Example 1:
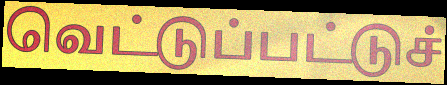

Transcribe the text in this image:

வெட்டுப்பட்டுச்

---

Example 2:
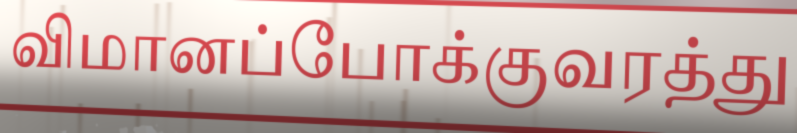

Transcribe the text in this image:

விமானப்போக்குவரத்து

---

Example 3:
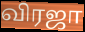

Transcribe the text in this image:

விரஜா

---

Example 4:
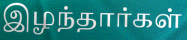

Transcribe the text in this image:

இழந்தார்கள்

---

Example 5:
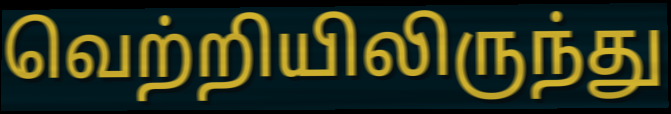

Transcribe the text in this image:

வெற்றியிலிருந்து